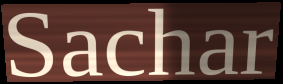
Sachar